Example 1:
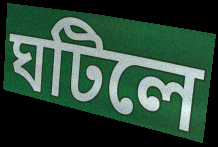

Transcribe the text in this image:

ঘটিলে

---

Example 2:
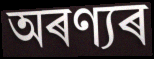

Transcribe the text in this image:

অৰণ্যৰ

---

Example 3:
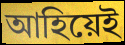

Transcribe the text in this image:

আহিয়েই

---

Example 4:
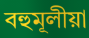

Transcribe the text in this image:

বহুমূলীয়া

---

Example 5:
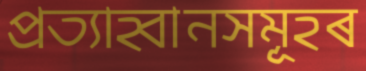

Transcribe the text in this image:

প্ৰত্যাহ্বানসমূহৰ